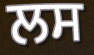
ਲਸ